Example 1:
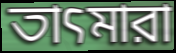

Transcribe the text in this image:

তাৎমারা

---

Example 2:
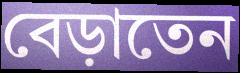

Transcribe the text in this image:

বেড়াতেন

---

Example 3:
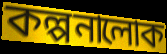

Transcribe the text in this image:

কল্পনালোক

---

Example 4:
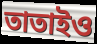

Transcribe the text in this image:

তাতাইও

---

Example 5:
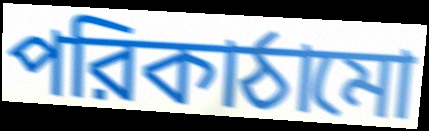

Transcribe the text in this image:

পরিকাঠামো